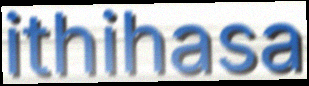
ithihasa